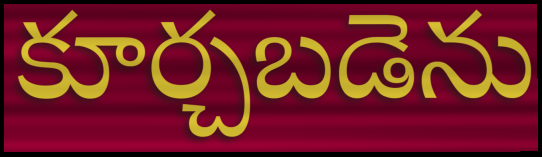
కూర్చబడెను